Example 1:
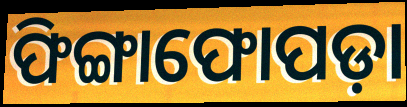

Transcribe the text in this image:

ଫିଙ୍ଗାଫୋପଡ଼ା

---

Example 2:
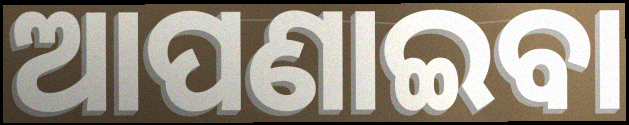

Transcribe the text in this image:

ଆପଣାଇବା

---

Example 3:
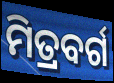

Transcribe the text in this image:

ମିତ୍ରବର୍ଗ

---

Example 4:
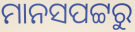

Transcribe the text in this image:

ମାନସପଟ୍ଟରୁ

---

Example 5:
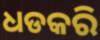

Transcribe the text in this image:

ଧଡକରି